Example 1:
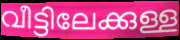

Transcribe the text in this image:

വീട്ടിലേക്കുള്ള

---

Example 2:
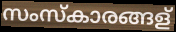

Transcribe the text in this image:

സംസ്കാരങ്ങള്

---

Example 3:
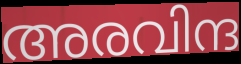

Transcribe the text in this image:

അരവിന്ദ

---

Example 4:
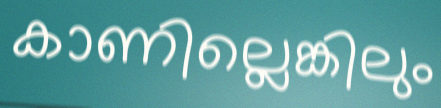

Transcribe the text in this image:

കാണില്ലെങ്കിലും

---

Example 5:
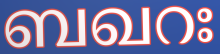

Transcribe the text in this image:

ബഖറഃ